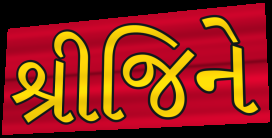
શ્રીજિને